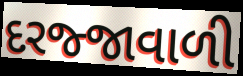
દરજ્જાવાળી